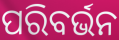
ପରିବର୍ଭନ